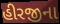
હીરજીના